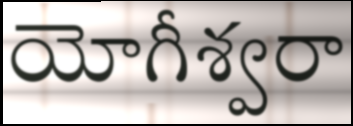
యోగీశ్వరా